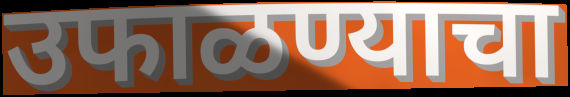
उफाळण्याचा